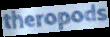
theropods